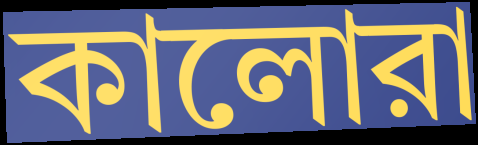
কালোরা